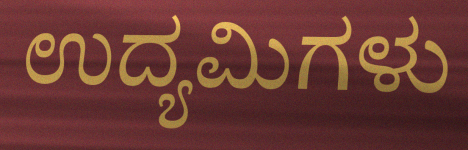
ಉದ್ಯಮಿಗಳು